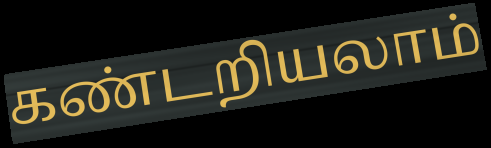
கண்டறியலாம்